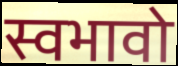
स्वभावो